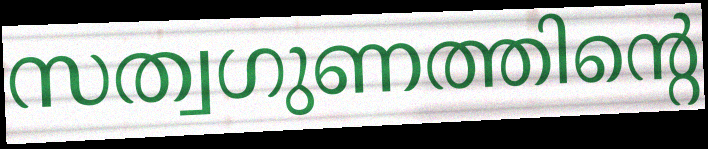
സത്വഗുണത്തിന്റെ